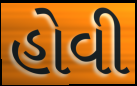
હોવી